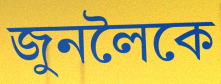
জুনলৈকে